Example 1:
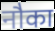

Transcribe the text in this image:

नौका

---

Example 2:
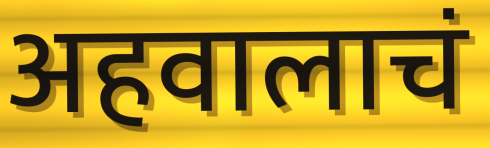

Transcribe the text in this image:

अहवालाचं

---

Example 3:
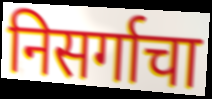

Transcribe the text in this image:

निसर्गाचा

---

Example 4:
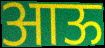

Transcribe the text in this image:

आऊ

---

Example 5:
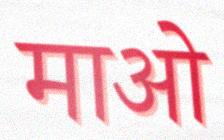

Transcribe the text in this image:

माओ